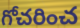
గోచరించ